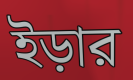
ইড়ার